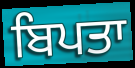
ਬਿਪਤਾ